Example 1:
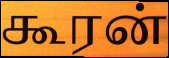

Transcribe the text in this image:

கூரன்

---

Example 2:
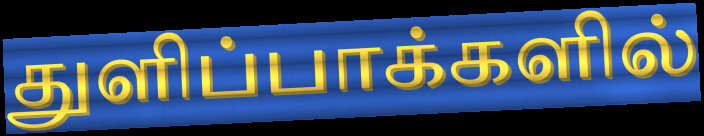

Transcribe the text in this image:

துளிப்பாக்களில்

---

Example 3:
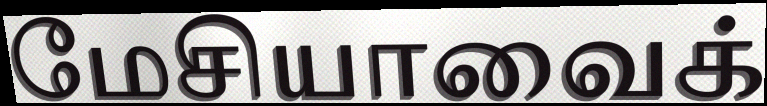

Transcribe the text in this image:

மேசியாவைக்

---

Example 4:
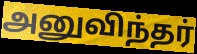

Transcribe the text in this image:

அனுவிந்தர்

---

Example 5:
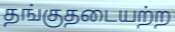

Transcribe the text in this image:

தங்குதடையற்ற